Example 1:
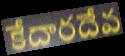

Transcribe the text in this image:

కేదారదేవ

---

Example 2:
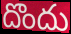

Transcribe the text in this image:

దొందు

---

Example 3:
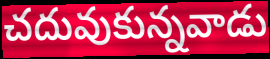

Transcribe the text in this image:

చదువుకున్నవాడు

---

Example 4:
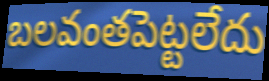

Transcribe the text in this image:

బలవంతపెట్టలేదు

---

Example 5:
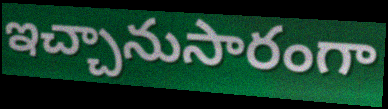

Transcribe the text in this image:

ఇచ్చానుసారంగా